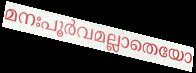
മനഃപൂർവമല്ലാതെയോ